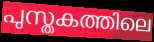
പുസ്തകത്തിലെ